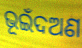
ଭୂଇଁଦଅଣ